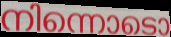
നിന്നൊടൊ